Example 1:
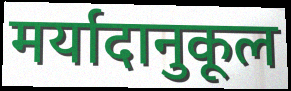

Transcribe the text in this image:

मर्यादानुकूल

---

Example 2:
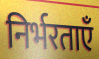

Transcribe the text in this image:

निर्भरताएँ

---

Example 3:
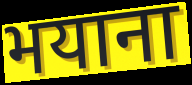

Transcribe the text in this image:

भयाना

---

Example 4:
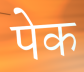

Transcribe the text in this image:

पेक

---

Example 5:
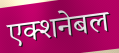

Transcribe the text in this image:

एक्शनेबल